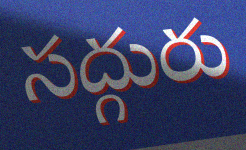
సద్గురు